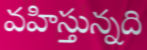
వహిస్తున్నది